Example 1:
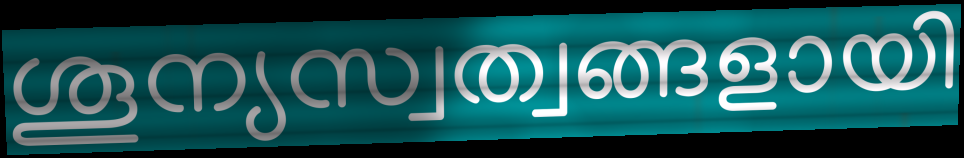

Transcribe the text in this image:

ശൂന്യസ്വത്വങ്ങളായി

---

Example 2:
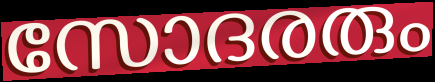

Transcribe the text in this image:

സോദരരും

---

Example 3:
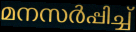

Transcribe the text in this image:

മനസർപ്പിച്ച്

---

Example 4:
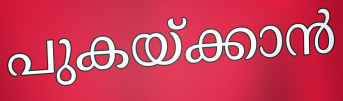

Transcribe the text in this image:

പുകയ്ക്കാൻ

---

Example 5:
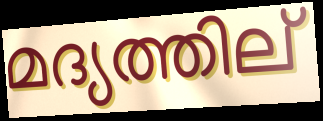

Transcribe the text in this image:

മദ്യത്തില്